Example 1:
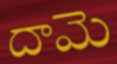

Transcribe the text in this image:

దామె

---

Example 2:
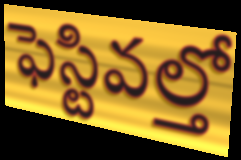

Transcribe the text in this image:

ఫెస్టివల్తో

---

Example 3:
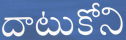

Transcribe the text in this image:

దాటుకోని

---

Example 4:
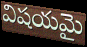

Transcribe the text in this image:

విషయమై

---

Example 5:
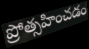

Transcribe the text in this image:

ప్రోత్సహించడం